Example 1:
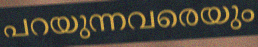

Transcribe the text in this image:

പറയുന്നവരെയും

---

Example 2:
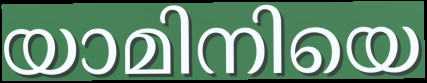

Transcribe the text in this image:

യാമിനിയെ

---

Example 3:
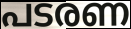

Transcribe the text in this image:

പടരണ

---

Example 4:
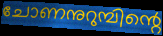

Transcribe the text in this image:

ചോണനുറുമ്പിന്റെ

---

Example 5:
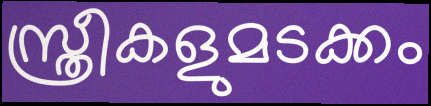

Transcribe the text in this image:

സ്ത്രീകളുമടക്കം